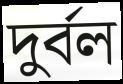
দুৰ্বল